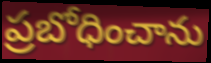
ప్రబోధించాను